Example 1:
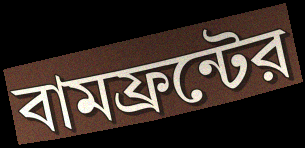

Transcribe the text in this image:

বামফ্রন্টের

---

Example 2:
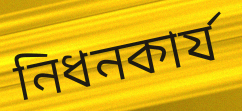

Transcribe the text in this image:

নিধনকার্য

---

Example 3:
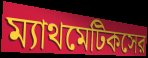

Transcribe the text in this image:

ম্যাথমেটিকসের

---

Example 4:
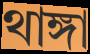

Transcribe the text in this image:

থাঙ্গা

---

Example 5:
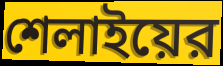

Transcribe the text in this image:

শেলাইয়ের